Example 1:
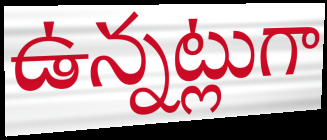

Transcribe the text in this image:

ఉన్నట్లుగా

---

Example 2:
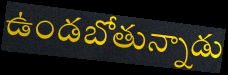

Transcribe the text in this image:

ఉండబోతున్నాడు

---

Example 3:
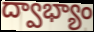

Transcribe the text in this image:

ద్వాభ్యాం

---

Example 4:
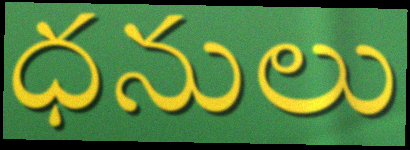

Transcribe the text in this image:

ధనులు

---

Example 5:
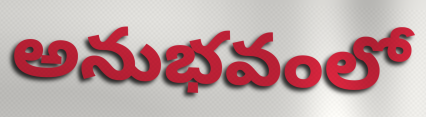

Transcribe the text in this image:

అనుభవంలో